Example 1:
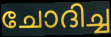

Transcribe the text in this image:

ചോദിച്ച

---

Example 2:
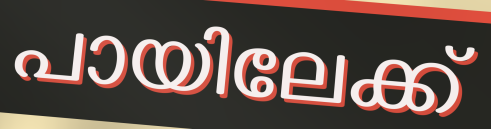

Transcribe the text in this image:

പായിലേക്ക്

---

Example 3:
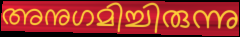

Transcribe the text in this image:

അനുഗമിച്ചിരുന്നു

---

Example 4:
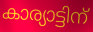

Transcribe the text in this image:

കാര്യാട്ടിന്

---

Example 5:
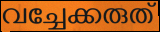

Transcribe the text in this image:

വച്ചേക്കരുത്